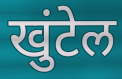
खुंटेल